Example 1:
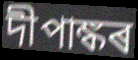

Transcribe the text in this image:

দীপাঙ্কৰ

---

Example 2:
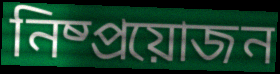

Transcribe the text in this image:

নিষ্প্ৰয়োজন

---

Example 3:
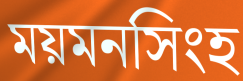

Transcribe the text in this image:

ময়মনসিংহ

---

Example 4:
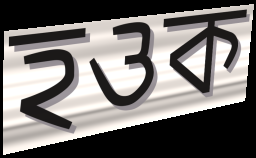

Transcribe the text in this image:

হওক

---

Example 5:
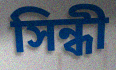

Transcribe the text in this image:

সিন্ধী